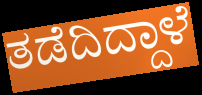
ತಡೆದಿದ್ದಾಳೆ